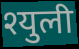
श्युली